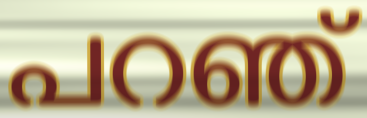
പറഞ്